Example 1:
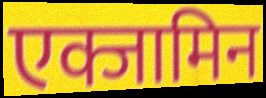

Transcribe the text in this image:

एक्जामिन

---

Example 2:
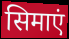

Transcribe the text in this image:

सिमाएं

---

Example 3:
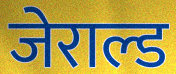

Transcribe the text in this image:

जेराल्ड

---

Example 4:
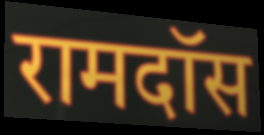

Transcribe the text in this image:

रामदॉस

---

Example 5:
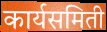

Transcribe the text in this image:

कार्यसमिती